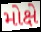
મોક્ષે